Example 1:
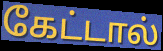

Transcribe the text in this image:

கேட்டால்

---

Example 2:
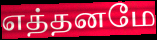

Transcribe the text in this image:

எத்தனமே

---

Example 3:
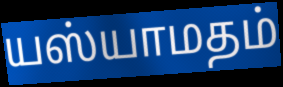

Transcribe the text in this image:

யஸ்யாமதம்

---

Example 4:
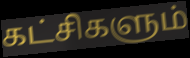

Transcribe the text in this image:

கட்சிகளும்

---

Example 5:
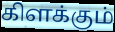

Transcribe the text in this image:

கிளக்கும்